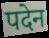
पदेन